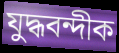
যুদ্ধবন্দীক